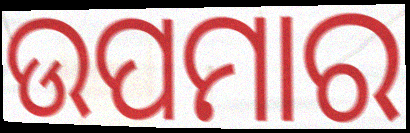
ଉପମାର